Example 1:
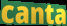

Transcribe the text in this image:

canta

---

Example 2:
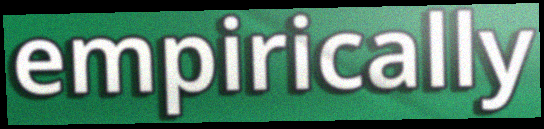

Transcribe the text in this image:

empirically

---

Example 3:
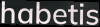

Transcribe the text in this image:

habetis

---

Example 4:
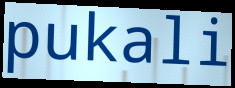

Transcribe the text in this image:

pukali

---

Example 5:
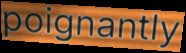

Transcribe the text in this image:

poignantly